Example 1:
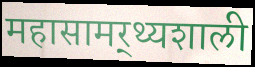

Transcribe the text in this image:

महासामर्थ्यशाली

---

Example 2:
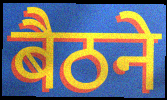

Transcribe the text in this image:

बैठने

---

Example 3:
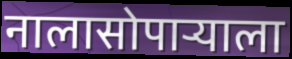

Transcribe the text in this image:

नालासोपाऱ्याला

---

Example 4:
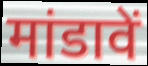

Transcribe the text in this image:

मांडावें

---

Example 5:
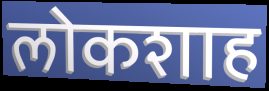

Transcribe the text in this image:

लोकशाह